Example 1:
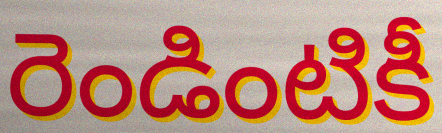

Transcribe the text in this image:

రెండింటికీ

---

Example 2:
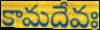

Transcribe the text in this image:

కామదేవః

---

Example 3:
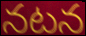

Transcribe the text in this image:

నటన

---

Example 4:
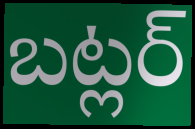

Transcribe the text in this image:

బట్లర్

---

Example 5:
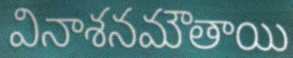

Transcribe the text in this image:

వినాశనమౌతాయి